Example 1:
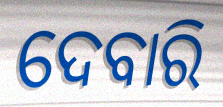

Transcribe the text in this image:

ଦେବାରି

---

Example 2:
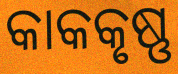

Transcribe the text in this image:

କାକକୃଷ୍ଣ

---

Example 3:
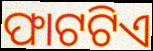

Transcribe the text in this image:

ଫାଟଟିଏ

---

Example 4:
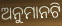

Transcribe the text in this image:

ଅନୁମାନଟି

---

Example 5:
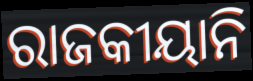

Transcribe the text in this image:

ରାଜକୀୟାନି